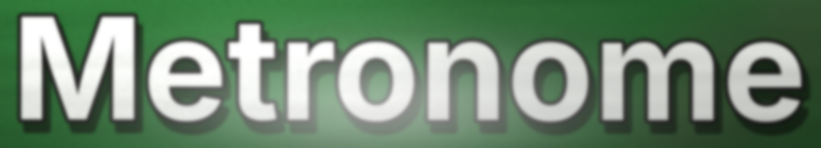
Metronome